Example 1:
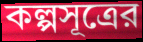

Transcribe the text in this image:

কল্পসূত্রের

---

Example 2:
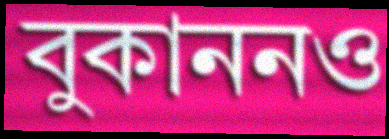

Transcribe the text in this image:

বুকাননও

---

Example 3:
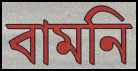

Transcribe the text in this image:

বামনি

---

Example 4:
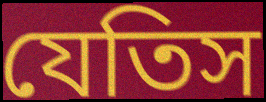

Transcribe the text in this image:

যেতিস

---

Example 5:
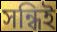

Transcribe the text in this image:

সন্ধিই